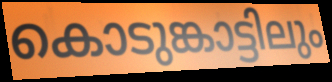
കൊടുങ്കാട്ടിലും